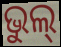
ଭୁଲ୍